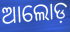
ଆଲୋଡ଼